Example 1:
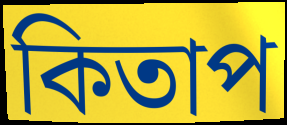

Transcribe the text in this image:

কিতাপ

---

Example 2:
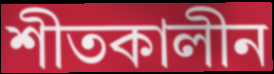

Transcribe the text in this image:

শীতকালীন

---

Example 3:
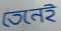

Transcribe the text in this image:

তেনেই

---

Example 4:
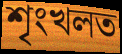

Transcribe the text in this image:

শৃংখলত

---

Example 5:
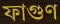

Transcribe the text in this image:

ফাগুণ